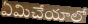
ఏమిచేయాలో